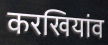
करखियांव